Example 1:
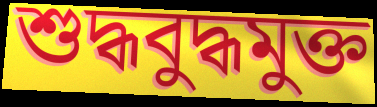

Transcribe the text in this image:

শুদ্ধবুদ্ধমুক্ত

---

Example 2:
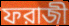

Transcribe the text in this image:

ফরাজী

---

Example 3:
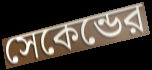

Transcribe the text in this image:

সেকেন্ডের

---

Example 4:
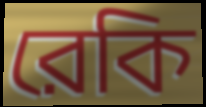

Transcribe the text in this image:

রেকি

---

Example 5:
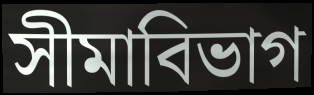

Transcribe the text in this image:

সীমাবিভাগ